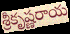
శ్రీకృష్ణరాయ